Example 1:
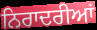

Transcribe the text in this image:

ਨਿਰਾਦਰੀਆਂ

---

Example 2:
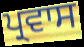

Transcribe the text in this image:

ਪ੍ਰਵਾਸ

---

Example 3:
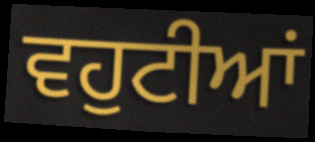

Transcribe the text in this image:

ਵਹੁਟੀਆਂ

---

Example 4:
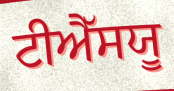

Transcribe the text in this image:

ਟੀਐੱਸਯੂ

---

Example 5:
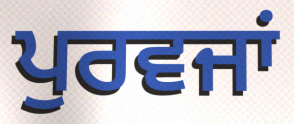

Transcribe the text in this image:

ਪੁਰਵਜਾਂ